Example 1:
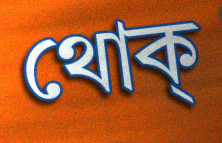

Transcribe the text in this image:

থোক্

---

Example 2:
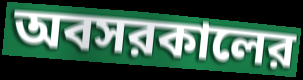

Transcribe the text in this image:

অবসরকালের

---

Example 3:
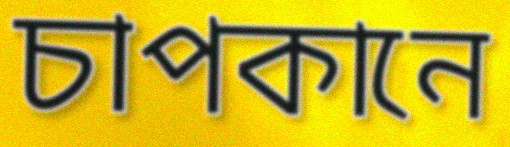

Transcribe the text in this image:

চাপকানে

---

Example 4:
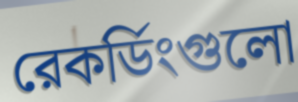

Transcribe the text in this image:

রেকর্ডিংগুলো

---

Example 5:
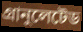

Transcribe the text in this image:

গ্রানুলেটেড